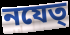
নযেত্